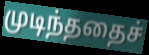
முடிந்ததைச்